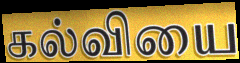
கல்வியை